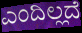
ಎಂದಿಲ್ಲದೆ